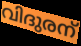
വിദുരന്